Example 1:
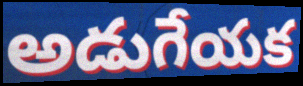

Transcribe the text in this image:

అడుగేయక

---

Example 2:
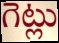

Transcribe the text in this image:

గెట్లు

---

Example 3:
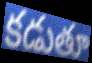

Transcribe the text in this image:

కడుతూ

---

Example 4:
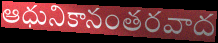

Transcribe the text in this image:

ఆధునికానంతరవాద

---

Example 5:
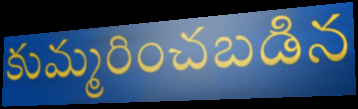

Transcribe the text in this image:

కుమ్మరించబడిన